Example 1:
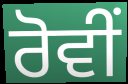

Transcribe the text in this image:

ਰੋਵੀਂ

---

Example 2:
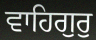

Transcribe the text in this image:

ਵਾਹਿਗੁਰੁ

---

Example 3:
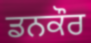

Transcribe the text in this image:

ਡਨਕੌਰ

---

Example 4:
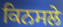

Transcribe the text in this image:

ਕਿਨਸਲੇ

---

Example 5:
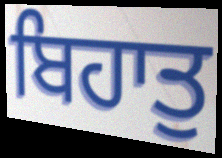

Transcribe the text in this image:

ਬਿਹਾਤੁ